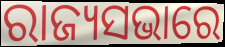
ରାଜ୍ୟସଭାରେ